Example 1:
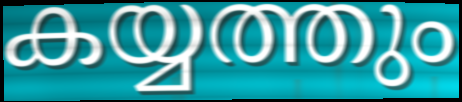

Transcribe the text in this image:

കയ്യത്തും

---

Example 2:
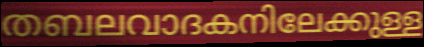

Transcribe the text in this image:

തബലവാദകനിലേക്കുള്ള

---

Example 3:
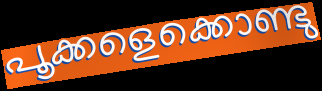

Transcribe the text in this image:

പൂക്കളെക്കൊണ്ടു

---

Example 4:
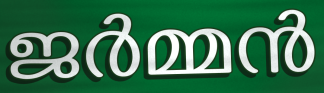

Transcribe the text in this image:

ജർമ്മൻ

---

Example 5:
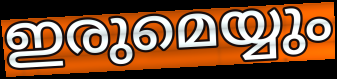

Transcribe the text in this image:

ഇരുമെയ്യും